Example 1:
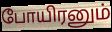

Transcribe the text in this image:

போயிரனும்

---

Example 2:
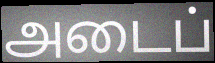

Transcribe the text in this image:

அடைப்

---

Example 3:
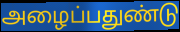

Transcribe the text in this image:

அழைப்பதுண்டு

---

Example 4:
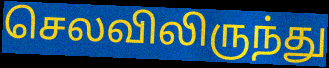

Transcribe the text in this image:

செலவிலிருந்து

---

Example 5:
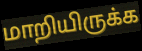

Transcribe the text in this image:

மாறியிருக்க